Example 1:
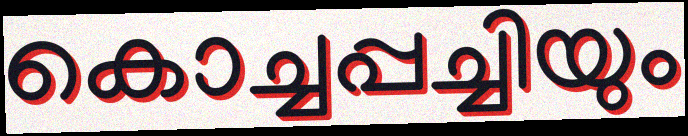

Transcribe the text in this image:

കൊച്ചപ്പച്ചിയും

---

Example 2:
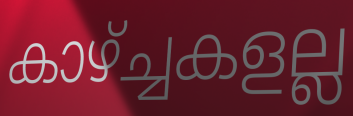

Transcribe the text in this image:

കാഴ്ച്ചകളല്ല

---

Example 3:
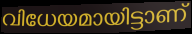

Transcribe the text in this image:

വിധേയമായിട്ടാണ്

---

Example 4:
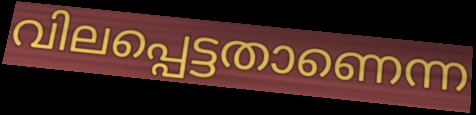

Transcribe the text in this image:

വിലപ്പെട്ടതാണെന്ന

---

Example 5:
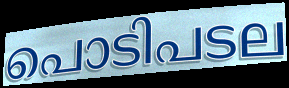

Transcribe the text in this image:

പൊടിപടല